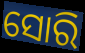
ସୋରି